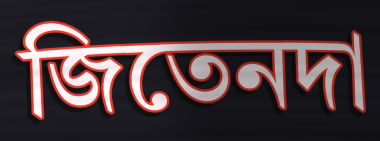
জিতেনদা